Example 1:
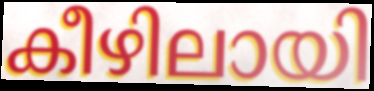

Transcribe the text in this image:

കീഴിലായി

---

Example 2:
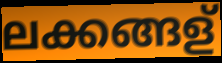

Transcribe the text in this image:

ലക്കങ്ങള്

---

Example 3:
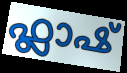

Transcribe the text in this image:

ഫ്ലാഷ്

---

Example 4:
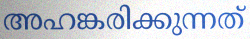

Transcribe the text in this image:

അഹങ്കരിക്കുന്നത്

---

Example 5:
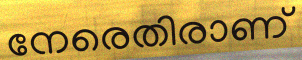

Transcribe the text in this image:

നേരെതിരാണ്